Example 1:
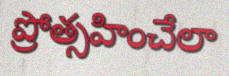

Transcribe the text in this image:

ప్రోత్సహించేలా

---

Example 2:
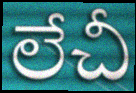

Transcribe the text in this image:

లేచీ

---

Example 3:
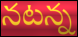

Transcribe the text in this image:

నటన్న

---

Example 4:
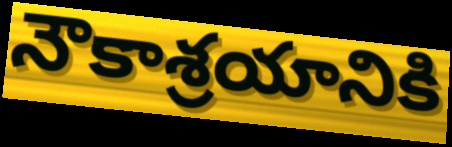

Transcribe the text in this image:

నౌకాశ్రయానికి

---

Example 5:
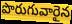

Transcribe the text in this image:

పొరుగువారైన